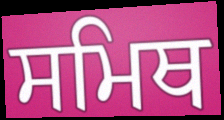
ਸਮਿਥ